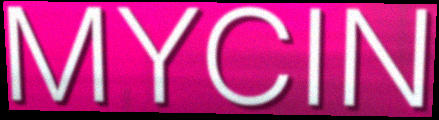
MYCIN